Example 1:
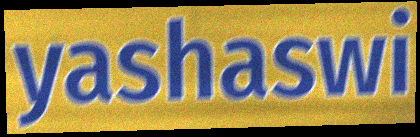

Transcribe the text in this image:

yashaswi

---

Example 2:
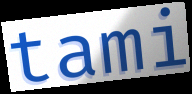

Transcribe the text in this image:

tami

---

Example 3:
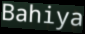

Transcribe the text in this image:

Bahiya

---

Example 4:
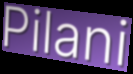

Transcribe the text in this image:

Pilani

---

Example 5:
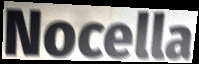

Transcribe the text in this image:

Nocella